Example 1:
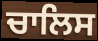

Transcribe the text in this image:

ਚਾਲਿਸ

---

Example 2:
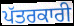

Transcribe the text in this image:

ਪੱਤਰਕਾਰੀ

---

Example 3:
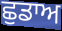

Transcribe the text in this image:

ਛੁਡਾਅ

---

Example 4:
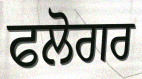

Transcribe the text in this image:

ਫਲੋਗਰ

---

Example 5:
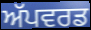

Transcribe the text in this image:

ਅੱਪਵਰਡ